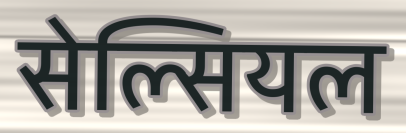
सेल्सियल